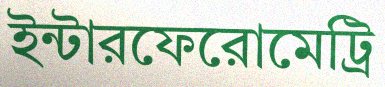
ইন্টারফেরোমেট্রি